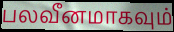
பலவீனமாகவும்